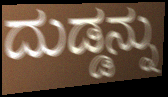
ದುಡ್ಡನ್ನು